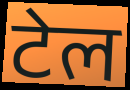
टेल